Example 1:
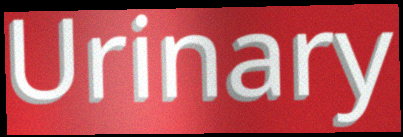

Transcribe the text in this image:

Urinary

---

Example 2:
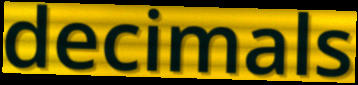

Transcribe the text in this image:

decimals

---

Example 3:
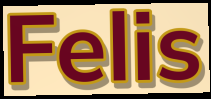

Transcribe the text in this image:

Felis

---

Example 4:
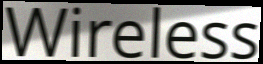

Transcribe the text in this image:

Wireless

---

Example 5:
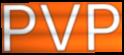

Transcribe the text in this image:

PVP